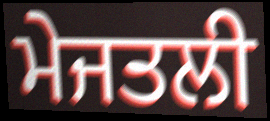
ਮੇਜਤਲੀ